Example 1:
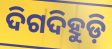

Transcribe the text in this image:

ଦିଗଦିହୁଡ଼ି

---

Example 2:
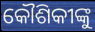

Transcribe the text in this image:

କୌଶିକୀଙ୍କୁ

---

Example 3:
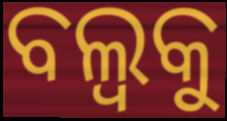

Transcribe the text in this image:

ବଲ୍ବକୁ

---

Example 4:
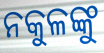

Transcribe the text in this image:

ନକୁଳଙ୍କୁ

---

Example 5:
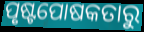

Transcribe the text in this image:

ପୃଷ୍ଟପୋଷକତାରୁ